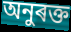
অনুৰক্ত